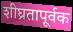
शीघ्रतापूर्वक